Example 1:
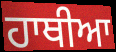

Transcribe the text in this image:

ਹਾਥੀਆ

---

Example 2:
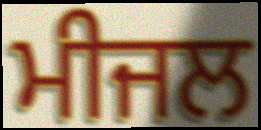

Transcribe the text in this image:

ਮੀਜਲ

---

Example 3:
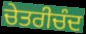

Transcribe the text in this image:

ਚੇਤਰੀਚੰਦ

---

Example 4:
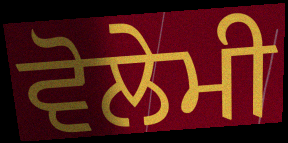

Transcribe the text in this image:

ਵੋਲੇਮੀ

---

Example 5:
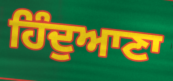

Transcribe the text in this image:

ਹਿੰਦੁਆਣਾ